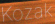
Kozak